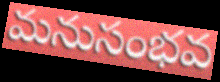
మనుసంభవ